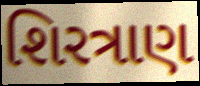
શિરત્રાણ